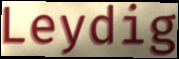
Leydig